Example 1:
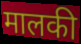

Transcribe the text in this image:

मालकी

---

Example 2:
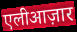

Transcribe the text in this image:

एलीआज़ार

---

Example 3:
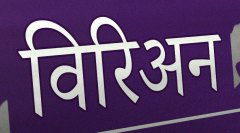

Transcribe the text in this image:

विरिअन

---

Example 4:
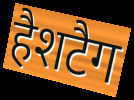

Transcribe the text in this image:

हैशटैग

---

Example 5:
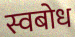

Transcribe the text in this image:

स्वबोध